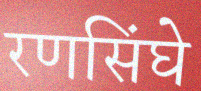
रणसिंघे